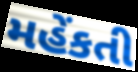
મહેંકતી